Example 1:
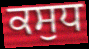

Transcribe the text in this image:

ਕਸੁਧ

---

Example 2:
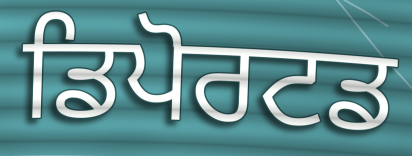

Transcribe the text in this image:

ਡਿਪੋਰਟਡ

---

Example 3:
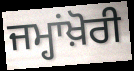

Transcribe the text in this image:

ਜਮ੍ਹਾਂਖ਼ੋਰੀ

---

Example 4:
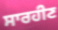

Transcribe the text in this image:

ਸਾਰਹੀਣ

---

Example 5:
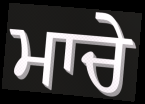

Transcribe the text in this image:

ਮਾਚੇ